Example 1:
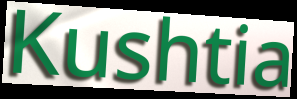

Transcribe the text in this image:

Kushtia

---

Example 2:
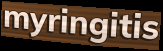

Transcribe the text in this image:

myringitis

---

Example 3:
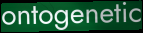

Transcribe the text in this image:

ontogenetic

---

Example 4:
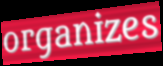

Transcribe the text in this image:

organizes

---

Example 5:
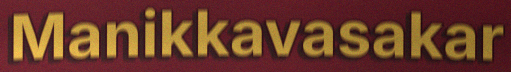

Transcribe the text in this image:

Manikkavasakar